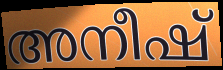
അനീഷ്